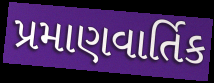
પ્રમાણવાર્તિક